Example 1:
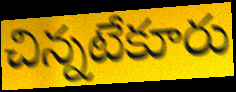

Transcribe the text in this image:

చిన్నటేకూరు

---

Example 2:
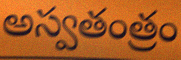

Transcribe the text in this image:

అస్వతంత్రం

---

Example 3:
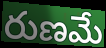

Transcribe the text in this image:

రుణమే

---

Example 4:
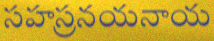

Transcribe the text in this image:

సహస్రనయనాయ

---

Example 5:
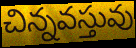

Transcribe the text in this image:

చిన్నవస్తువు